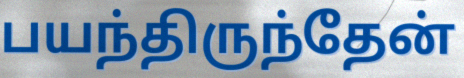
பயந்திருந்தேன்